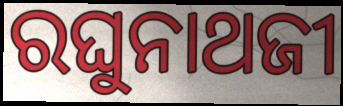
ରଘୁନାଥଜୀ